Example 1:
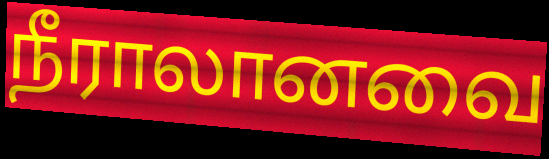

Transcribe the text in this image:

நீராலானவை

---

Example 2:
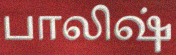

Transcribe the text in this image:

பாலிஷ்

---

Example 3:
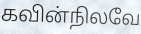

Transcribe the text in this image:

கவின்நிலவே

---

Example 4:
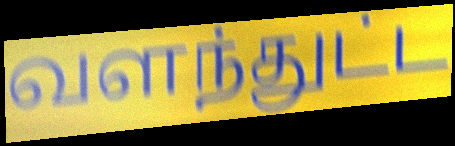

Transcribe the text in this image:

வளந்துட்ட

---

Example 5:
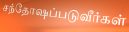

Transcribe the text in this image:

சந்தோஷப்படுவீர்கள்